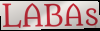
LABAs